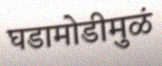
घडामोडीमुळं